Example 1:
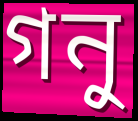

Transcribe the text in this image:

গনু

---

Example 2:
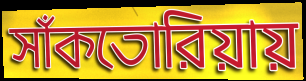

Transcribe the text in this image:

সাঁকতোরিয়ায়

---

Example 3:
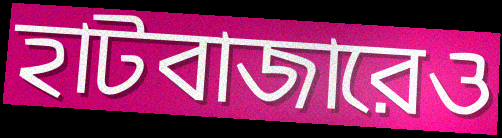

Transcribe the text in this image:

হাটবাজারেও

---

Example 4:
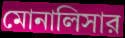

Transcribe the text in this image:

মোনালিসার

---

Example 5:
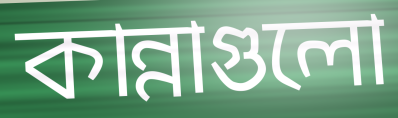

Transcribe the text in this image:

কান্নাগুলো